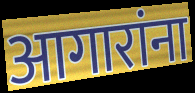
आगारांना